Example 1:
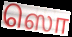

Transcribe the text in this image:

ஸொ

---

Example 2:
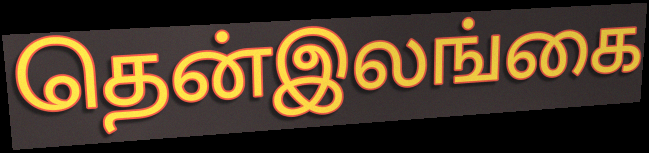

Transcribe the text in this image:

தென்இலங்கை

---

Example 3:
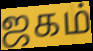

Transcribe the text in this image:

ஜகம்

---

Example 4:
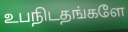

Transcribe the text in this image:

உபநிடதங்களே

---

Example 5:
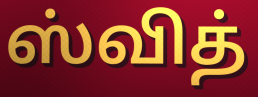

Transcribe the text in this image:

ஸ்வித்